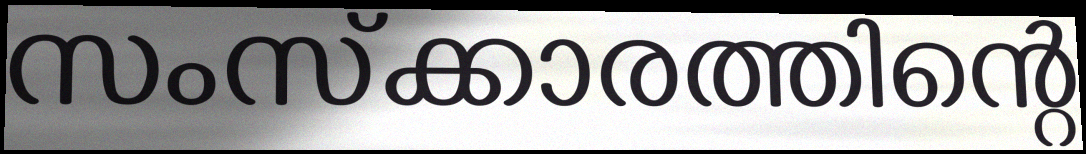
സംസ്‌ക്കാരത്തിന്റെ